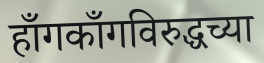
हाँगकाँगविरुद्धच्या